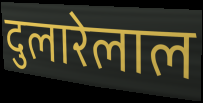
दुलारेलाल